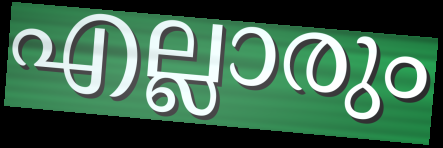
എല്ലാരും